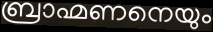
ബ്രാഹ്മണനെയും